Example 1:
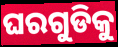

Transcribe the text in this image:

ଘରଗୁଡିକୁ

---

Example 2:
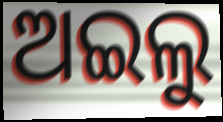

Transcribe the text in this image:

ଅଇଲୁ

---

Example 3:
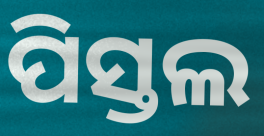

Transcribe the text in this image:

ପିସ୍ତଲ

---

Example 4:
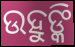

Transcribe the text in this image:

ଉହୁଙ୍କି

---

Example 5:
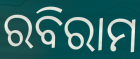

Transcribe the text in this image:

ରବିରାମ